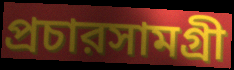
প্রচারসামগ্রী